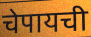
चेपायची